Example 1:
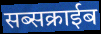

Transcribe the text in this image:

सब्सक्राईब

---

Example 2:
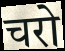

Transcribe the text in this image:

चरो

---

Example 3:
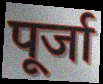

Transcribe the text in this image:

पूर्जा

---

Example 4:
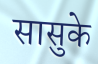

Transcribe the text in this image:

सासुके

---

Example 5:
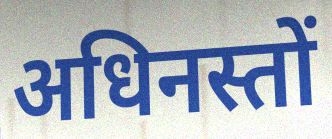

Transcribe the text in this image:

अधिनस्तों